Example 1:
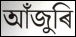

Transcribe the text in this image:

আঁজুৰি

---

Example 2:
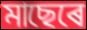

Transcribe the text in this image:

মাছেৰে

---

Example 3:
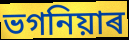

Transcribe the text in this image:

ভগনিয়াৰ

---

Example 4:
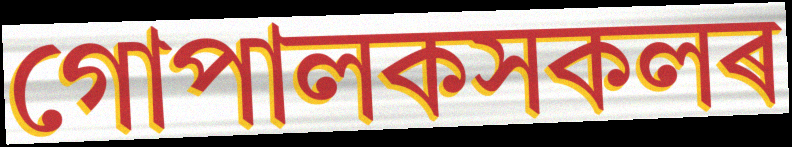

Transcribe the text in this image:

গোপালকসকলৰ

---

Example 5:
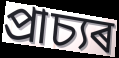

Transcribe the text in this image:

প্ৰাচ্যৰ